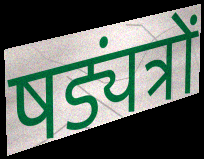
षड्यंत्रों